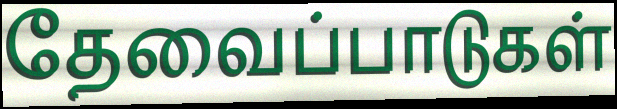
தேவைப்பாடுகள்